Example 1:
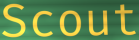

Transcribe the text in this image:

Scout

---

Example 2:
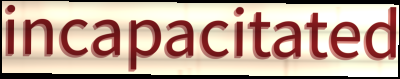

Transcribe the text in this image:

incapacitated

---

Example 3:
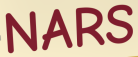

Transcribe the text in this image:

NARS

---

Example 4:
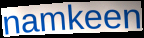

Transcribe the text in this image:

namkeen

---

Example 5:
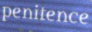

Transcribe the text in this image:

penitence